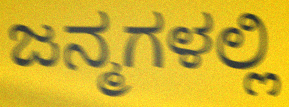
ಜನ್ಮಗಳಲ್ಲಿ